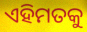
ଏହିମତକୁ